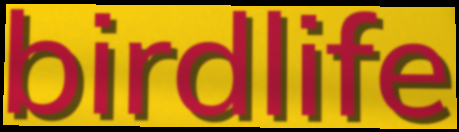
birdlife